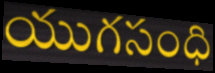
యుగసంధి